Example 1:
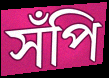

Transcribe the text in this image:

সঁপি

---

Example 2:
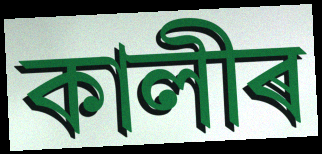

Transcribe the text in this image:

কালীৰ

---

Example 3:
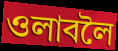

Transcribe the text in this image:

ওলাবলৈ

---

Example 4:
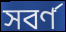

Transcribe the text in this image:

সবৰ্ণ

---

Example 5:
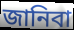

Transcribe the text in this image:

জানিবা